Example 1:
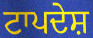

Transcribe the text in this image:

ਟਾਪਦੇਸ਼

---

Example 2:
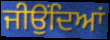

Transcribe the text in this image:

ਜੀਉਂਦਿਆਂ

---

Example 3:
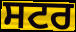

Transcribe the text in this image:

ਸਟਰ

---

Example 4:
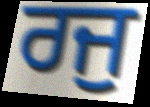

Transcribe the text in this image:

ਰਜੁ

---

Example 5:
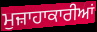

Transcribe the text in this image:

ਮੁਜ਼ਾਹਾਕਾਰੀਆਂ